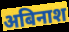
अबिनाश